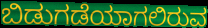
ಬಿಡುಗಡೆಯಾಗಲಿರುವ